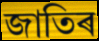
জাতিৰ